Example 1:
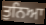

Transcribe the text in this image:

ਤੁਨਿਆ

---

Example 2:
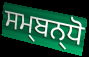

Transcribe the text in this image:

ਸਮ੍ਬਨ੍ਧੋ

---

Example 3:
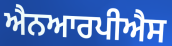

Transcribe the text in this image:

ਐਨਆਰਪੀਐਸ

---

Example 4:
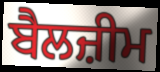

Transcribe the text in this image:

ਬੈਲਜ਼ੀਮ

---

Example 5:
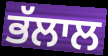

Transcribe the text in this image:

ਭੱਲਾਲ